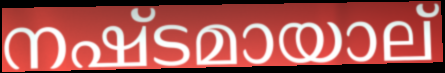
നഷ്ടമായാല്